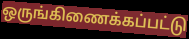
ஒருங்கிணைக்கப்பட்டு